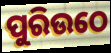
ପୁରିଉଠେ